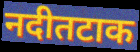
नदीतटाक